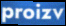
proizv